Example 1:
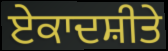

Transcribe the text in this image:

ਏਕਾਦਸ਼ੀਤੇ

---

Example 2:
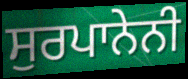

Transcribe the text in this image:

ਸੁਰਪਾਨੇਨੀ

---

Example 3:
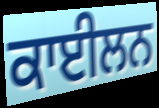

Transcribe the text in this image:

ਕਾਈਲਨ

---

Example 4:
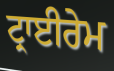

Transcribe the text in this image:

ਟ੍ਰਾਈਰੇਮ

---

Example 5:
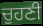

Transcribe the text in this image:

ਚੁਹਣੀ